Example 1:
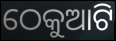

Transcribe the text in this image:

ଠେକୁଆଟି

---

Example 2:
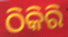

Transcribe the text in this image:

ଠିକିରି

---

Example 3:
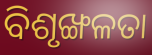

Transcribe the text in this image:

ବିଶୃଙ୍ଖଳତା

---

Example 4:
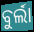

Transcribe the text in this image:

ବୁର୍ଲା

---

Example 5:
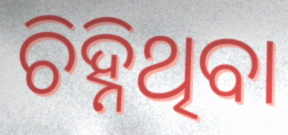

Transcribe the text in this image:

ଚିହ୍ନିଥିବା